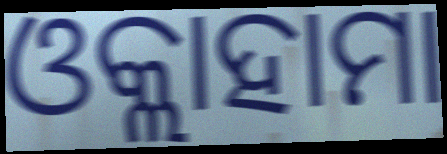
ଓକ୍ଲାହାମା